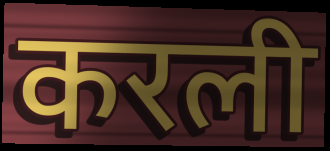
करली